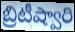
బ్రిటీష్వారి